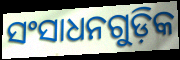
ସଂସାଧନଗୁଡ଼ିକ